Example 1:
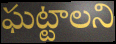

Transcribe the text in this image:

ఘట్టాలని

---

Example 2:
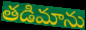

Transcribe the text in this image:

తడిమాను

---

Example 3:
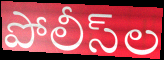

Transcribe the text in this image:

పోలీస్‌ల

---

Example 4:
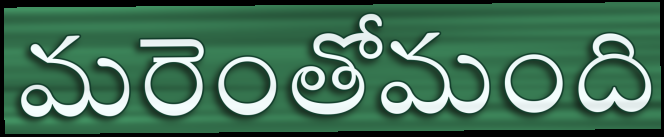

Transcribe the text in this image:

మరెంతోమంది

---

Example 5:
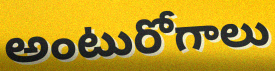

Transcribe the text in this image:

అంటురోగాలు